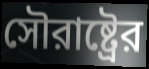
সৌরাষ্ট্রের